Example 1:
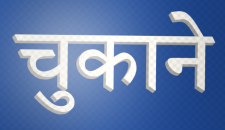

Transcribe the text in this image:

चुकाने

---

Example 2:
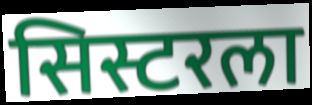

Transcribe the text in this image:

सिस्टरला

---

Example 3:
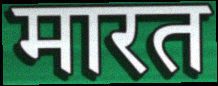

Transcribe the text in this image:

मारत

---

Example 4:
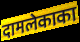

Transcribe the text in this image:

दामलेकाका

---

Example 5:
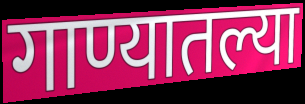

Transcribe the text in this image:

गाण्यातल्या